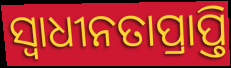
ସ୍ଵାଧୀନତାପ୍ରାପ୍ତି